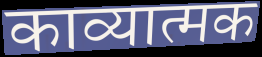
काव्यात्मक